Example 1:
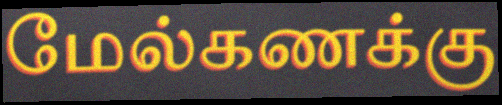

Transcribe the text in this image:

மேல்கணக்கு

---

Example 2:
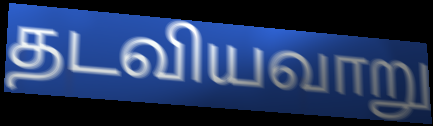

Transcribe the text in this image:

தடவியவாறு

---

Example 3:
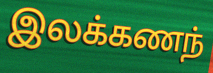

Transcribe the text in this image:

இலக்கணந்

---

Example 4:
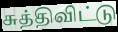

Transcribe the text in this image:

சுத்திவிட்டு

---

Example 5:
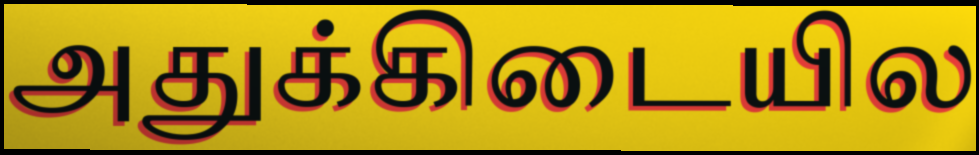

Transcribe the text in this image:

அதுக்கிடையில